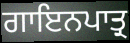
ਗਾਇਨਪਾਤ੍ਰ